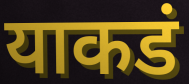
याकडं